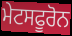
ਮੇਟਸਫੂਰੋਨ